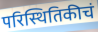
परिस्थितिकीचं